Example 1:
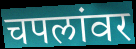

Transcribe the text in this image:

चपलांवर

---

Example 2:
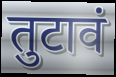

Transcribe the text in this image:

तुटावं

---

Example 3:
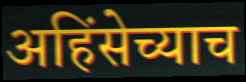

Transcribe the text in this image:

अहिंसेच्याच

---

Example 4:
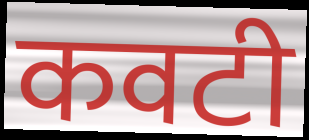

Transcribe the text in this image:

कवटी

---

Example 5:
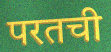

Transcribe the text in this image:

परतची